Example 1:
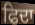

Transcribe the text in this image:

ਫਿਦਾ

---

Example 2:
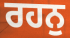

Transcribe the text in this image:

ਰਹਨੁ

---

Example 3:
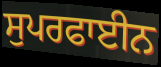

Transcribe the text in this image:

ਸੁਪਰਫਾਈਨ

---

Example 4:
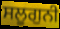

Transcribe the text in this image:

ਸਲੂਗੁਨੀ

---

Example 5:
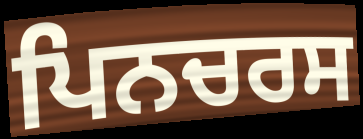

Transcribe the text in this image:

ਪਿਨਚਰਸ